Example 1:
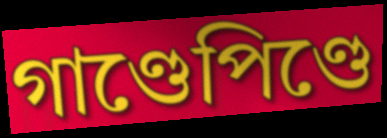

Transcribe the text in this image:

গাণ্ডেপিণ্ডে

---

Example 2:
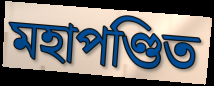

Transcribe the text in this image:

মহাপণ্ডিত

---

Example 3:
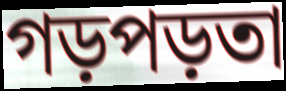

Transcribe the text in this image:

গড়পড়তা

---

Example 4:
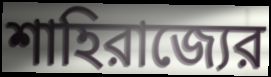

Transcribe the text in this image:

শাহিরাজ্যের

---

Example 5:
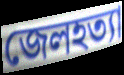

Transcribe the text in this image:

জেলহত্যা